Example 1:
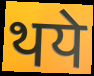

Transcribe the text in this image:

थये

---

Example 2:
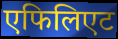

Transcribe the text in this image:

एफिलिएट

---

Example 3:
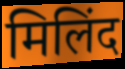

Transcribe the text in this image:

मिलिंद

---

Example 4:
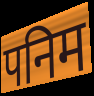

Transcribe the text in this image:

पनिम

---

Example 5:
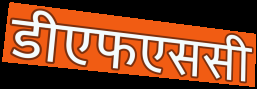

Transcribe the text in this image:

डीएफएससी